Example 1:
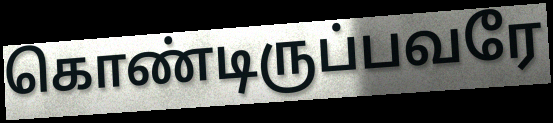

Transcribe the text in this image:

கொண்டிருப்பவரே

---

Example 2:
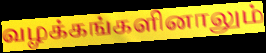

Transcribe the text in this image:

வழக்கங்களினாலும்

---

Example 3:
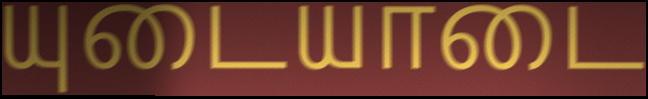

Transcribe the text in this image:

யுடையாடை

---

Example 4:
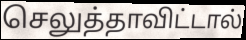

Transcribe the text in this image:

செலுத்தாவிட்டால்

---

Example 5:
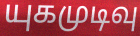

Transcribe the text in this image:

யுகமுடிவு